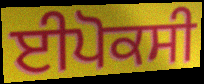
ਈਪੋਕਸੀ